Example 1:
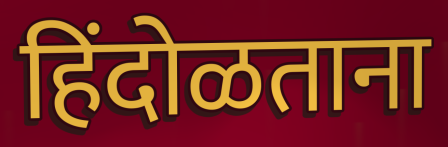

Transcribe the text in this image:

हिंदोळताना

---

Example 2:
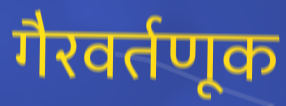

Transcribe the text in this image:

गैरवर्तणूक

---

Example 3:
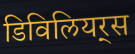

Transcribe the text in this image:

डिविलियर्स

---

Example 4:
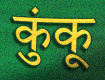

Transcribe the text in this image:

कुंकू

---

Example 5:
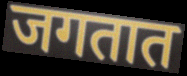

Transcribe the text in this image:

जगतात